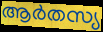
ആർതസ്യ